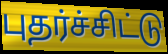
புதர்ச்சிட்டு